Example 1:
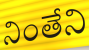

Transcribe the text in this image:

నింతేని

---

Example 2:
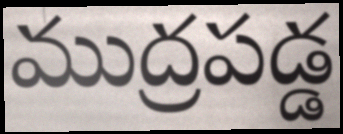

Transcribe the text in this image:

ముద్రపడ్డ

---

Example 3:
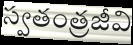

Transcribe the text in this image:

స్వతంత్రజీవి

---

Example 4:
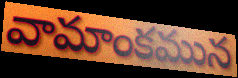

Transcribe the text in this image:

వామాంకమున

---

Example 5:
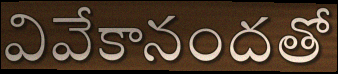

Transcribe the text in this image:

వివేకానందతో